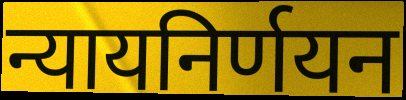
न्यायनिर्णयन